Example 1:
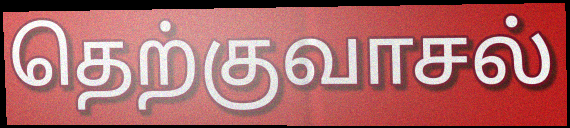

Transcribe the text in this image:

தெற்குவாசல்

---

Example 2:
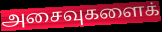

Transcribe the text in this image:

அசைவுகளைக்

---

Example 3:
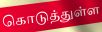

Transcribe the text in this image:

கொடுத்துள்ள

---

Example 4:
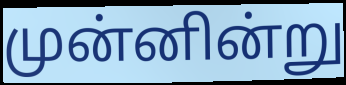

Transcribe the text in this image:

முன்னின்று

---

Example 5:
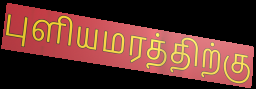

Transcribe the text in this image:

புளியமரத்திற்கு